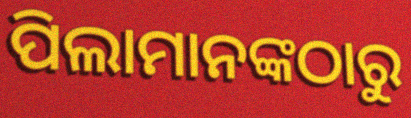
ପିଲାମାନଙ୍କଠାରୁ